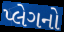
પ્લેગનો